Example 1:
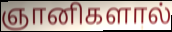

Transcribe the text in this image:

ஞானிகளால்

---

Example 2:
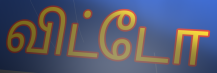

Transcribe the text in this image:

விட்டோ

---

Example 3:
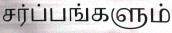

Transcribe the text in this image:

சர்ப்பங்களும்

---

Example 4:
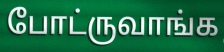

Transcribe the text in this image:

போட்ருவாங்க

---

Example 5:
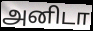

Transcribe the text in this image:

அனிடா